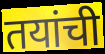
तयांची